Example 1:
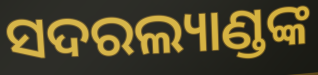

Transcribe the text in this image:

ସଦରଲ୍ୟାଣ୍ଡଙ୍କ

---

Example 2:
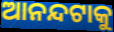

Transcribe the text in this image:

ଆନନ୍ଦଟାକୁ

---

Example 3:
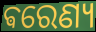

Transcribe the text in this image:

ଵରେଣ୍ୟ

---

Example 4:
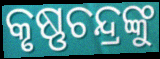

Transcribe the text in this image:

କୃଷ୍ଣଚନ୍ଦ୍ରଙ୍କୁ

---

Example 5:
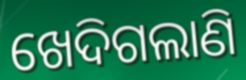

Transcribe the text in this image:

ଖେଦିଗଲାଣି